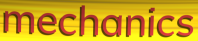
mechanics